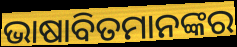
ଭାଷାବିତମାନଙ୍କର